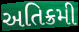
અતિક્રમી